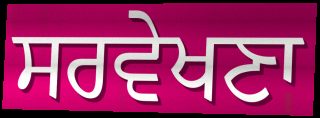
ਸਰਵੇਖਣਾ